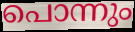
പൊന്നും